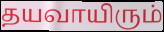
தயவாயிரும்